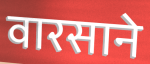
वारसाने